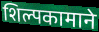
शिल्पकामाने